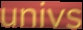
univs